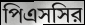
পিএসসির